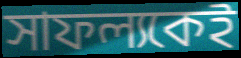
সাফল্যকেই